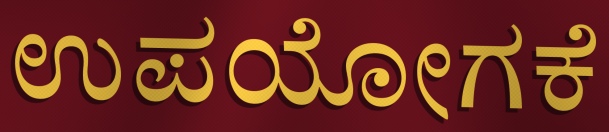
ಉಪಯೋಗಕೆ